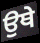
ਉਥੇ